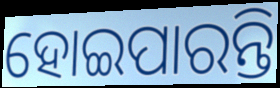
ହୋଇପାରନ୍ତି